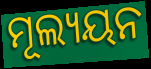
ମୂଲ୍ୟୟନ